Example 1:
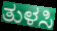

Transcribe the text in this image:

ತುಳಸಿ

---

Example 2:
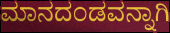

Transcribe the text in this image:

ಮಾನದಂಡವನ್ನಾಗಿ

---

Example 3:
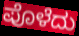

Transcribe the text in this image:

ಪೊಳೆದು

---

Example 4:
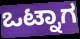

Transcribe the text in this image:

ಒಟ್ನಾಗ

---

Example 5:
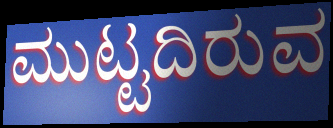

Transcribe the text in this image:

ಮುಟ್ಟದಿರುವ